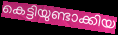
കെട്ടിയുണ്ടാക്കിയ